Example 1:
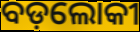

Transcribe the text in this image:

ବଡ଼ଲୋକୀ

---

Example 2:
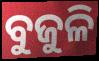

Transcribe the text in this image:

ବୁଜୁଳି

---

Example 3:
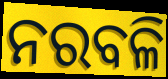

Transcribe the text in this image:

ନରବଳି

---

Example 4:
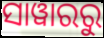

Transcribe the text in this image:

ସାୱାରରୁ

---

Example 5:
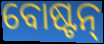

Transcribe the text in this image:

ବୋଷ୍ଟନ୍